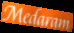
Medaram